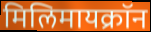
मिलिमायक्रॉन